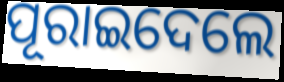
ପୂରାଇଦେଲେ